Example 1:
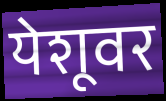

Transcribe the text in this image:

येशूवर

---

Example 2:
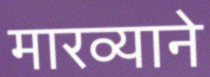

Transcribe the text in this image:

मारव्याने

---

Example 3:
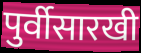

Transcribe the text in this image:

पुर्वीसारखी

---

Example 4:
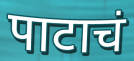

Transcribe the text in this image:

पाटाचं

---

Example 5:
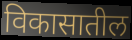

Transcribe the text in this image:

विकासातील